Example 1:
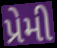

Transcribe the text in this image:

પ્રેમી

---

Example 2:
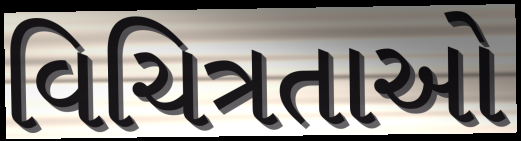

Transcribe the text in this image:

વિચિત્રતાઓ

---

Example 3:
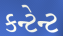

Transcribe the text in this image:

કન્ટેન્ટ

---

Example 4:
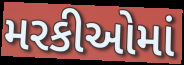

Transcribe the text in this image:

મરકીઓમાં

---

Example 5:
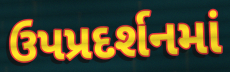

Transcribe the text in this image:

ઉપપ્રદર્શનમાં